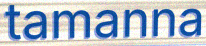
tamanna